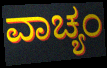
ವಾಚ್ಯಂ